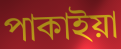
পাকাইয়া